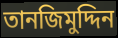
তানজিমুদ্দিন